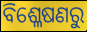
ବିଶ୍ଳେଷଣରୁ